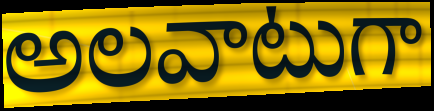
అలవాటుగా